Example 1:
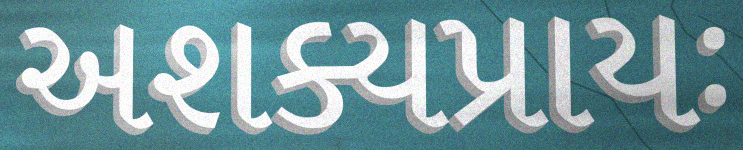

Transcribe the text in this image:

અશક્યપ્રાયઃ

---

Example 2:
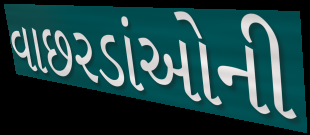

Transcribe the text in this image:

વાછરડાંઓની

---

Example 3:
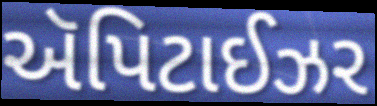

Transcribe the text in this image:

ઍપિટાઈઝર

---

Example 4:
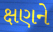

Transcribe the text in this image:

ક્ષણને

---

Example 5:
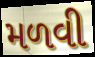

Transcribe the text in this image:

મળવી